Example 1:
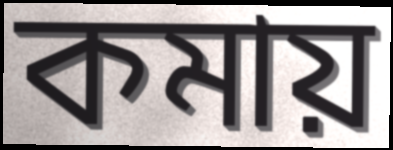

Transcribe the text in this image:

কমায়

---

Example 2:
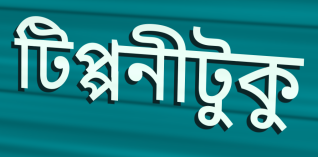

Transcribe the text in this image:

টিপ্পনীটুকু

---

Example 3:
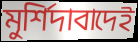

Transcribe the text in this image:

মুর্শিদাবাদেই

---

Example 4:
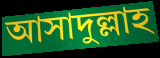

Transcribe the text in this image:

আসাদুল্লাহ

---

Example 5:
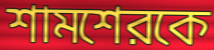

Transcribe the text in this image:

শামশেরকে